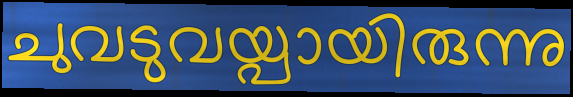
ചുവടുവയ്പായിരുന്നു